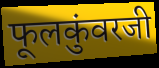
फूलकुंवरजी